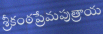
శ్రీకంఠప్రేమపుత్రాయ